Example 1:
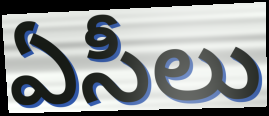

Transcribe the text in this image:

ఏసీలు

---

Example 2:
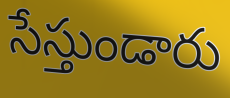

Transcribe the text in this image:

సేస్తుండారు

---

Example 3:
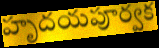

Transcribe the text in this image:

హృదయపూర్వక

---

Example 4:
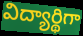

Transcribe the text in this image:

విద్యార్థిగా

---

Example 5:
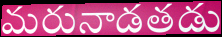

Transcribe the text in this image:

మరునాడతడు